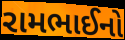
રામભાઈનો